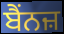
ਬੈਂਨਜ਼